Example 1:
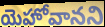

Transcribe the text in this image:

యెహోవానని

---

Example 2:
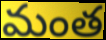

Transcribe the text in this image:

మంత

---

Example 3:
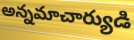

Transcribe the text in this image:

అన్నమాచార్యుడి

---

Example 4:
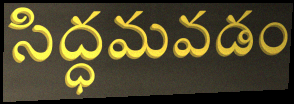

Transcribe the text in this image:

సిద్ధమవడం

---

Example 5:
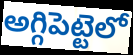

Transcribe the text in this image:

అగ్గిపెట్టెలో